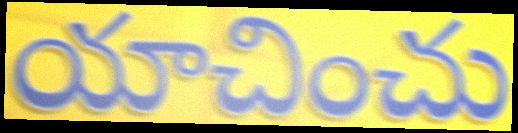
యాచించు